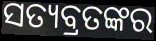
ସତ୍ୟବ୍ରତଙ୍କର